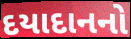
દયાદાનનો